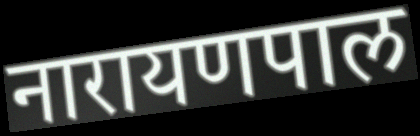
नारायणपाल